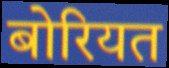
बोरियत